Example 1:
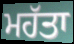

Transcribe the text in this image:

ਮਹੱਤਾ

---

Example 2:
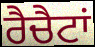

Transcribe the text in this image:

ਰੈਚੈਟਾਂ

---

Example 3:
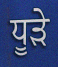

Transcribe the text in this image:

ਧੂੜੇ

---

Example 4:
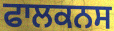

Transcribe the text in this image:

ਫਾਲਕਨਸ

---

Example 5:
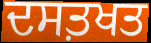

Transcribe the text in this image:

ਦਸਤ਼ਖਤ